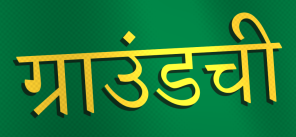
ग्राउंडची